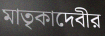
মাতৃকাদেবীর